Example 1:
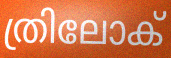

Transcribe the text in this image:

ത്രിലോക്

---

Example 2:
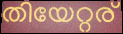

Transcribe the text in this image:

തിയേറ്റര്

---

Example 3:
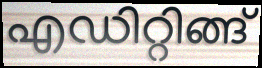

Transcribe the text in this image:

എഡിറ്റിങ്ങ്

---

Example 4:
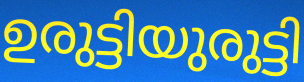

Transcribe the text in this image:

ഉരുട്ടിയുരുട്ടി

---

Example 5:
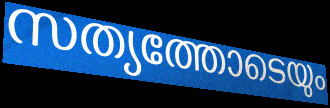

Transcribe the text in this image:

സത്യത്തോടെയും